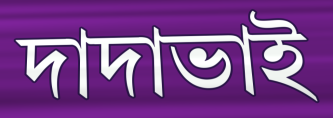
দাদাভাই